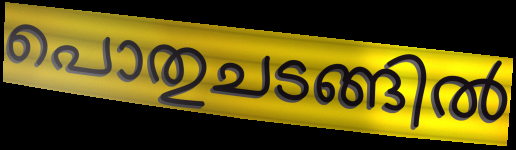
പൊതുചടങ്ങിൽ